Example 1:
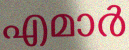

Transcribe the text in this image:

എമാർ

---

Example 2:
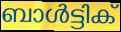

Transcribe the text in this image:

ബാൾട്ടിക്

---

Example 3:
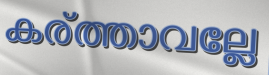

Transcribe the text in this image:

കര്ത്താവല്ലേ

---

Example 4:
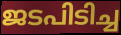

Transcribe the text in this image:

ജടപിടിച്ച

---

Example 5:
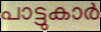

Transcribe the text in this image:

പാട്ടുകാർ